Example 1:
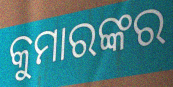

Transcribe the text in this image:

କୁମାରଙ୍କର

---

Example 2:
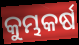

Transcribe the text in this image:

କୁମ୍ଭକର୍ଷ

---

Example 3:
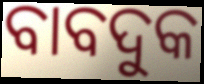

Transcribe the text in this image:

ବାବଦୁକ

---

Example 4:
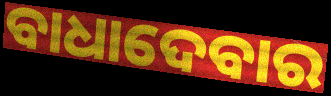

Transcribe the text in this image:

ବାଧାଦେବାର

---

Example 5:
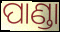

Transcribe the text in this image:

ପାଣ୍ଡା